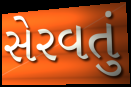
સેરવતું